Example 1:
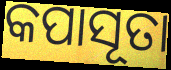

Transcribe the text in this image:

କପାସୂତା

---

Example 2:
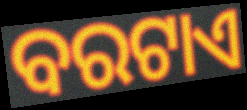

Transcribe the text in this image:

ବରଟାଏ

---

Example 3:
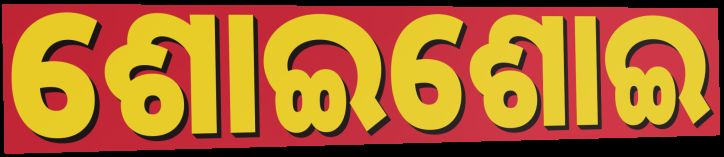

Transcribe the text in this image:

ଶୋଇଶୋଇ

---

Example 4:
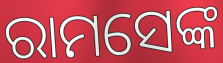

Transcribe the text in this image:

ରାମସେଙ୍କ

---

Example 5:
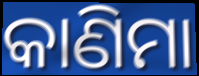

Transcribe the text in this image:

କାଣିମା